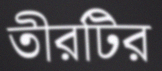
তীরটির